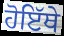
ਹੋਇੱਥੇ